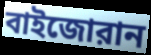
বাইজোরান